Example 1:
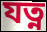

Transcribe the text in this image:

যত্ন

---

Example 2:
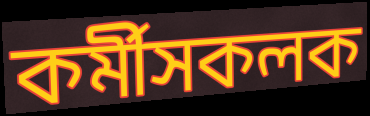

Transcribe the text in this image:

কৰ্মীসকলক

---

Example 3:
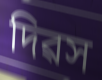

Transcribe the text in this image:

দিৱস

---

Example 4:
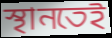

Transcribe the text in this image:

স্থানতেই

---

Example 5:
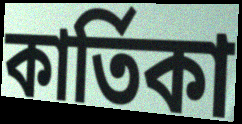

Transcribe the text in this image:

কাৰ্তিকা